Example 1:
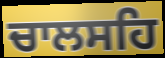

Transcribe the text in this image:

ਚਾਲਸਹਿ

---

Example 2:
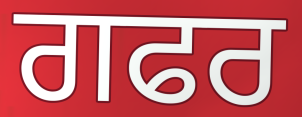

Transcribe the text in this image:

ਗਫਰ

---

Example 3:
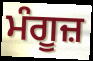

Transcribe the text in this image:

ਮੰਗੂਜ਼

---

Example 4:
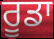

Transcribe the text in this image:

ਰੂਡਾ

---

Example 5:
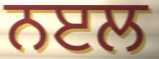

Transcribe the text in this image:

ਨੲਲ